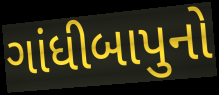
ગાંધીબાપુનો